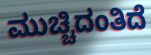
ಮುಚ್ಚಿದಂತಿದೆ